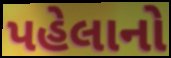
પહેલાનો